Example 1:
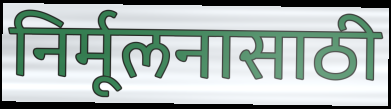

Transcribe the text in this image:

निर्मूलनासाठी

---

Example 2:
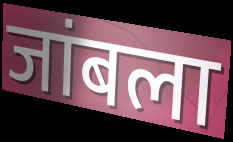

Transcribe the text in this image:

जांबला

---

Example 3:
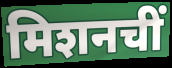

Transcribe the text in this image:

मिशनचीं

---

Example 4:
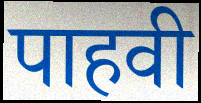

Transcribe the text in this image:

पाहवी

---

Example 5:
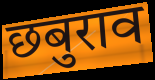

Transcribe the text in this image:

छबुराव